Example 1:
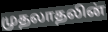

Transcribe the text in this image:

முதலாதலின்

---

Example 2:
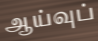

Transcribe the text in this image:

ஆய்வுப்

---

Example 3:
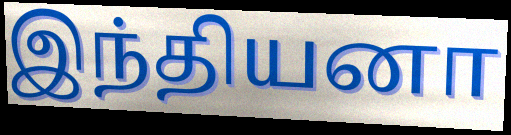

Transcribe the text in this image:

இந்தியனா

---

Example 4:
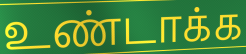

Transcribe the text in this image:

உண்டாக்க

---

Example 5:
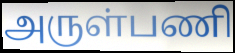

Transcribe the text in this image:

அருள்பணி